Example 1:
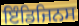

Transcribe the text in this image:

ਇੰਡਿਜਿਨਸ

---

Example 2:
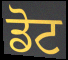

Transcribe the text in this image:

ਡੋਟ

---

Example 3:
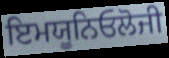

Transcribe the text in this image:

ਇਮਯੂਨਿਓਲੋਜੀ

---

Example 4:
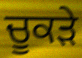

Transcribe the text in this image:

ਚੂਕੜੇ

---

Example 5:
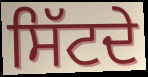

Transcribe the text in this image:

ਸਿੱਟਦੇ